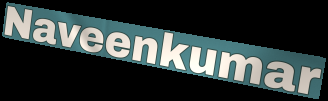
Naveenkumar